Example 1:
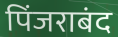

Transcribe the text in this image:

पिंजराबंद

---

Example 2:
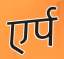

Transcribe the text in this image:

एर्प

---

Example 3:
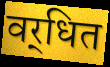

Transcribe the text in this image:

वर्धित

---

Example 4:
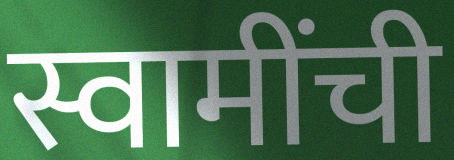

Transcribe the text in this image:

स्वामींची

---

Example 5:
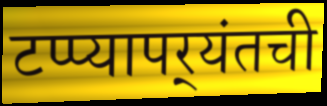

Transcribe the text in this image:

टप्प्यापर्यंतची